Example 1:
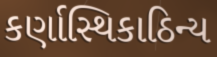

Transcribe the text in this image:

કર્ણાસ્થિકાઠિન્ય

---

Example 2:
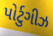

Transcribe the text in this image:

પોર્ટુગીઝ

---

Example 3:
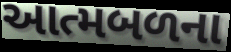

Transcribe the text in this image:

આત્મબળના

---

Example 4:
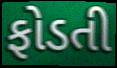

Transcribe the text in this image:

ફોડતી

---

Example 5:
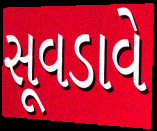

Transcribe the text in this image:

સૂવડાવે